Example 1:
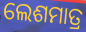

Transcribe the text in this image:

ଲେଶମାତ୍ର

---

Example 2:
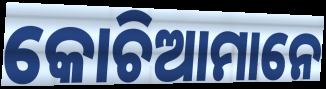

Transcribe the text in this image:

କୋଚିଆମାନେ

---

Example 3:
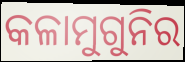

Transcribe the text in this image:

କଳାମୁଗୁନିର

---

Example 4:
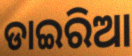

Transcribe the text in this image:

ଡାଇରିଆ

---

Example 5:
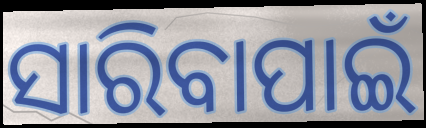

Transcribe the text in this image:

ସାରିବାପାଇଁ